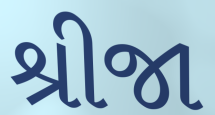
શ્રીજા